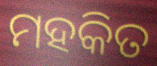
ମହକିତ